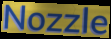
Nozzle